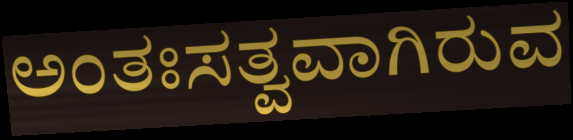
ಅಂತಃಸತ್ವವಾಗಿರುವ